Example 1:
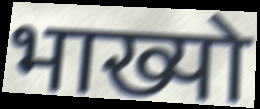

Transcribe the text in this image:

भाख्यो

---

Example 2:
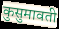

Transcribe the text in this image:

कुसुमावती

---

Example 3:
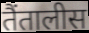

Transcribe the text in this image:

तैंतालीस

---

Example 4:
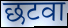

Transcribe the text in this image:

छटवा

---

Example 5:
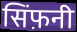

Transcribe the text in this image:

सिंफ़नी